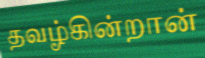
தவழ்கின்றான்